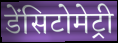
डेंसिटोमेट्री